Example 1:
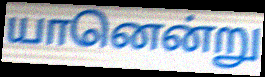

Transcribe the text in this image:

யானென்று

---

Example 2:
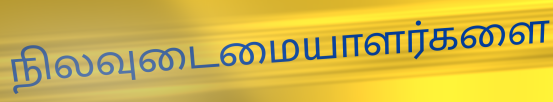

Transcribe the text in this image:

நிலவுடைமையாளர்களை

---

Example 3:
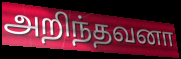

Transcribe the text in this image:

அறிந்தவனா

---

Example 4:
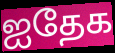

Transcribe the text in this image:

ஐதேக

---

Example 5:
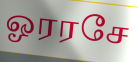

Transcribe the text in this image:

ஓரரசே